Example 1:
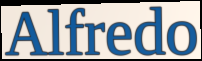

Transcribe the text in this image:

Alfredo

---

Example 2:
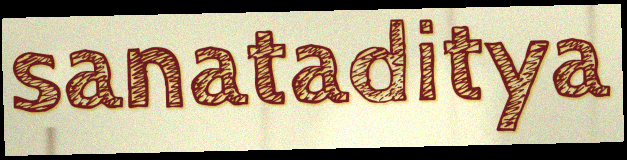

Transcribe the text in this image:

sanataditya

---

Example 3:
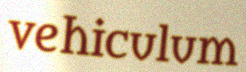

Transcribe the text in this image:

vehiculum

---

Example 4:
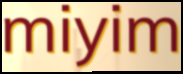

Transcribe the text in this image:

miyim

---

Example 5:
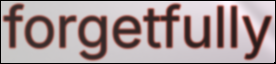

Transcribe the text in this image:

forgetfully